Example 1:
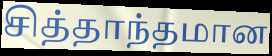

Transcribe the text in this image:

சித்தாந்தமான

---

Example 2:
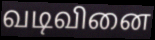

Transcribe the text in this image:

வடிவினை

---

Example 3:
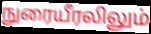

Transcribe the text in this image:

நுரையீரலிலும்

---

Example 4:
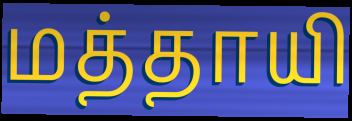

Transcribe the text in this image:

மத்தாயி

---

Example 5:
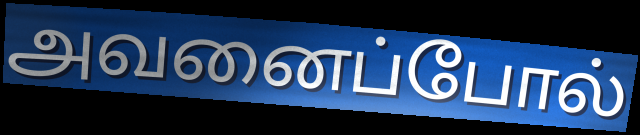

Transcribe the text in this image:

அவனைப்போல்